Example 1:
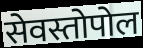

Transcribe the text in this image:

सेवस्तोपोल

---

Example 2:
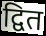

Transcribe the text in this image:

द्वित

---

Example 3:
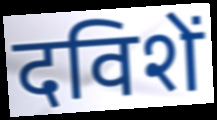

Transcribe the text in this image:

दविशें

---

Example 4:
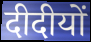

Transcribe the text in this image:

दीदीयों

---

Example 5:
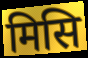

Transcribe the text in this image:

मिसि